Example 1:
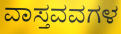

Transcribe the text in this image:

ವಾಸ್ತವವಗಳ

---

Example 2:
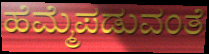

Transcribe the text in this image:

ಹೆಮ್ಮೆಪಡುವಂತೆ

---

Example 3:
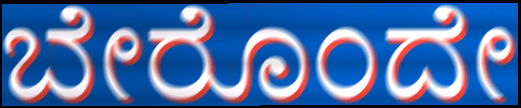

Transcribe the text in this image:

ಬೇರೊಂದೇ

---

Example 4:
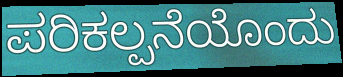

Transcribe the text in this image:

ಪರಿಕಲ್ಪನೆಯೊಂದು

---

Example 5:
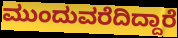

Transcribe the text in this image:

ಮುಂದುವರೆದಿದ್ದಾರೆ